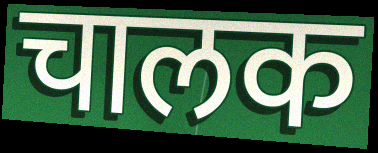
चालक